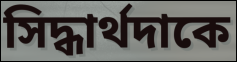
সিদ্ধার্থদাকে